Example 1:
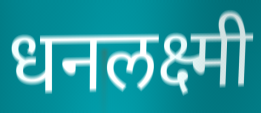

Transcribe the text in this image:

धनलक्ष्मी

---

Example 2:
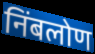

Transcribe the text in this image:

निंबलोण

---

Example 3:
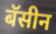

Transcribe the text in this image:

बॅसीन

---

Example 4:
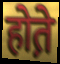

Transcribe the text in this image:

होत़े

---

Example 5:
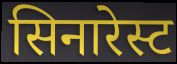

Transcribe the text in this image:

सिनारेस्ट